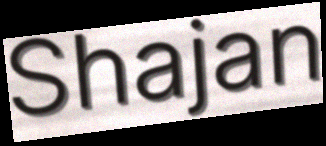
Shajan